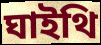
ঘাইথি